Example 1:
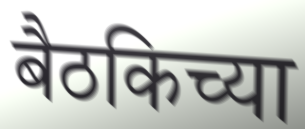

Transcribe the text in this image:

बैठकिच्या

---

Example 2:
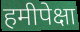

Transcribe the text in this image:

हमीपेक्षा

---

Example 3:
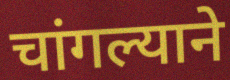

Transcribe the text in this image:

चांगल्याने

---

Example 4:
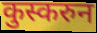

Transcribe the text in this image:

कुस्करुन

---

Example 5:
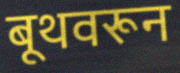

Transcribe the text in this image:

बूथवरून